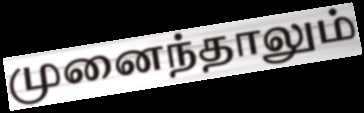
முனைந்தாலும்